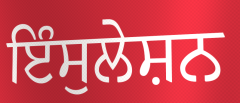
ਇੰਸੁਲੇਸ਼ਨ